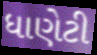
ધાણેટી